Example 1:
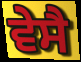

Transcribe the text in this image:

ਵੇਸੈ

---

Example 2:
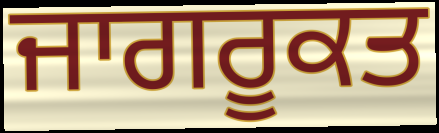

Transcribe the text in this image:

ਜਾਗਰੂਕਤ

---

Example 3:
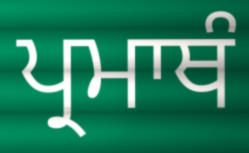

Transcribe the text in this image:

ਪ੍ਰਮਾਥੰ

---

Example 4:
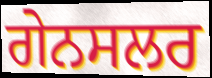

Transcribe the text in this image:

ਗੇਨਸਲਰ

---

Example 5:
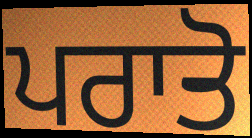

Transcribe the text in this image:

ਪਰਾਤੋ